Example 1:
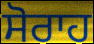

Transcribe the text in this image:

ਸੋਰਾਹ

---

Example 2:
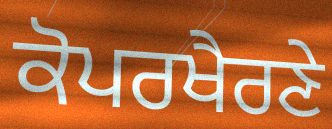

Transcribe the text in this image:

ਕੋਪਰਖੈਰਣੇ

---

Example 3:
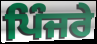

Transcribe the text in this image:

ਪਿੰਜਰੇ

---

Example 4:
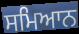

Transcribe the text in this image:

ਸਮਿਆਨ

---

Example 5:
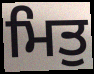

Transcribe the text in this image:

ਮਿਤੁ